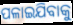
ପଳାଇଯିବାକୁ